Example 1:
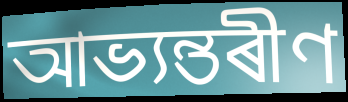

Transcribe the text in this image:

আভ্যন্তৰীণ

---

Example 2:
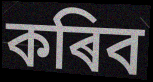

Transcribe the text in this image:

কৰিব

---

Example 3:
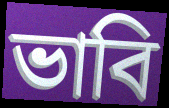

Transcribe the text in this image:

ভাবি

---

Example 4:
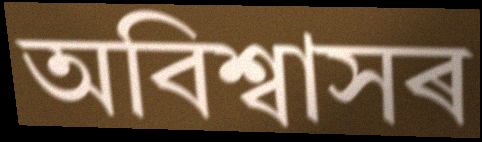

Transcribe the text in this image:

অবিশ্বাসৰ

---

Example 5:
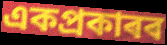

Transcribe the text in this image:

একপ্ৰকাৰৰ